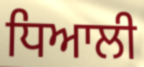
ਧਿਆਲੀ